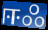
ஈஃ